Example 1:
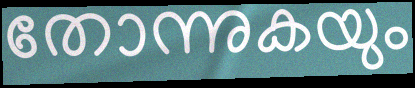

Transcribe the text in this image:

തോന്നുകയും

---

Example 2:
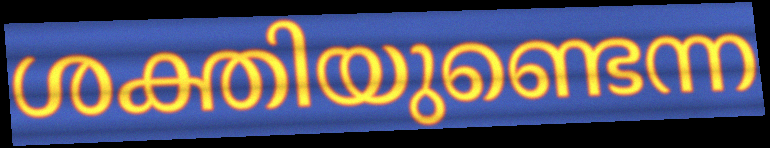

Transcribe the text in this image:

ശക്തിയുണ്ടെന്ന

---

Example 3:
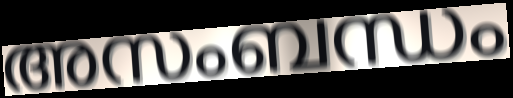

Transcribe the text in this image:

അസംബന്ധം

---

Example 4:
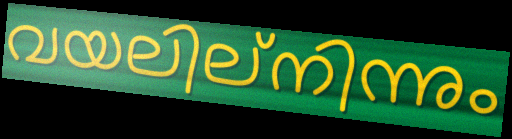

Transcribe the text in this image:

വയലില്നിന്നും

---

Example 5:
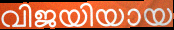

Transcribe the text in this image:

വിജയിയായ